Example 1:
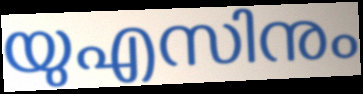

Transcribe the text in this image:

യുഎസിനും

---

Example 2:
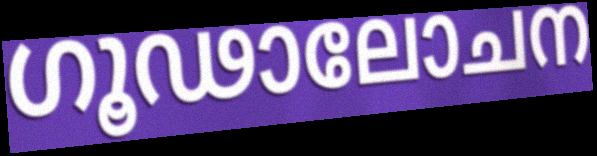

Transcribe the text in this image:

ഗൂഢാലോചന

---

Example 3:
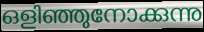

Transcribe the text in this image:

ഒളിഞ്ഞുനോക്കുന്നു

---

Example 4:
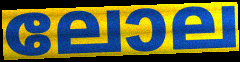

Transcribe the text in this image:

ലോല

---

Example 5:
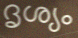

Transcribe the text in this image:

ദൃശ്യം